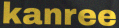
kanree